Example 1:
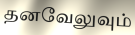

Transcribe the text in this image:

தனவேலுவும்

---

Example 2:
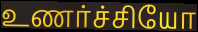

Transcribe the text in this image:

உணர்ச்சியோ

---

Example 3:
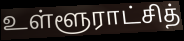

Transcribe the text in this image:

உள்ளூராட்சித்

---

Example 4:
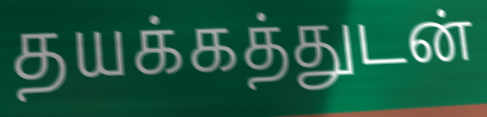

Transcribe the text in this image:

தயக்கத்துடன்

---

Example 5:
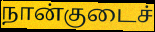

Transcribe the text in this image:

நான்குடைச்